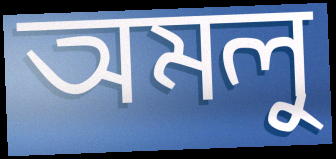
অমলু